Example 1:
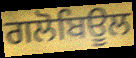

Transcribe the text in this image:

ਗਲੋਬਿਊਲ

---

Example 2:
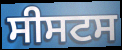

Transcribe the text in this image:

ਸੀਸਟਸ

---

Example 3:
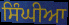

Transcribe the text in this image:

ਸਿੰਘੀਆ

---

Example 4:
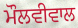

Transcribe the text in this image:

ਮੌਲਵੀਵਾਲ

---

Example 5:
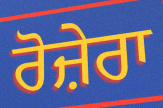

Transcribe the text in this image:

ਰੋਜ਼ੇਰਾ